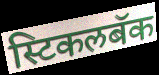
स्टिकलबॅक